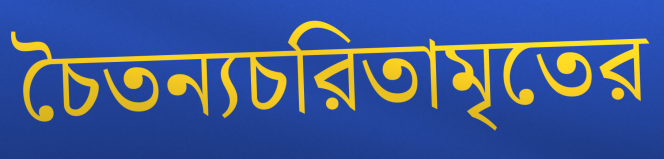
চৈতন্যচরিতামৃতের